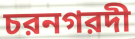
চরনগরদী